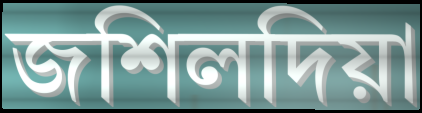
জশিলদিয়া